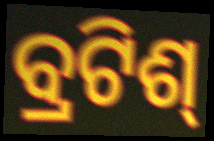
ବ୍ରଟିଶ୍